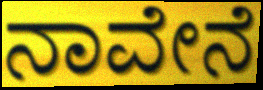
ನಾವೇನೆ